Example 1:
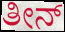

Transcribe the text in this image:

ತೀನ್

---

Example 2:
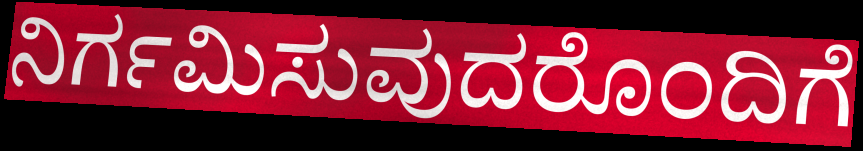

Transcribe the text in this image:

ನಿರ್ಗಮಿಸುವುದರೊಂದಿಗೆ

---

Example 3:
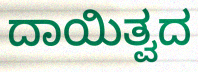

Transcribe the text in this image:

ದಾಯಿತ್ವದ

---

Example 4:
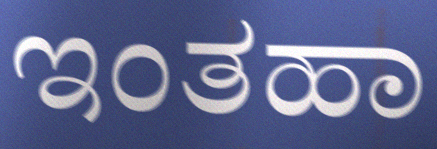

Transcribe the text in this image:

ಇಂತಹಾ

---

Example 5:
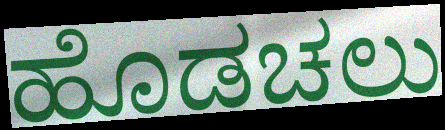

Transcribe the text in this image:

ಹೊಡಚಲು